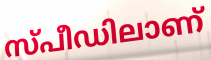
സ്പീഡിലാണ്